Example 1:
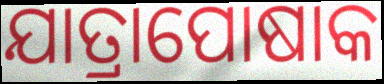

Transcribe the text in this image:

ଯାତ୍ରାପୋଷାକ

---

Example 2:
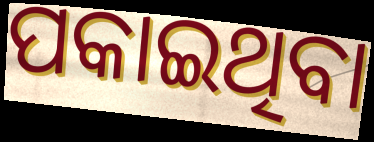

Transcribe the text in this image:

ପକାଇଥିବା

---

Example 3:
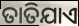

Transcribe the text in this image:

ତାତିଯାଏ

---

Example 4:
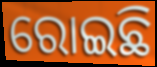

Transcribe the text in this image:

ରୋଇଛି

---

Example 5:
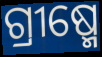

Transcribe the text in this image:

ଗ୍ରୀଷ୍ମେ